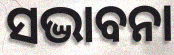
ସଦ୍ଭାବନା